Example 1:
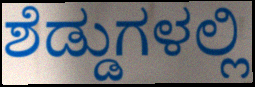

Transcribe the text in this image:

ಶೆಡ್ಡುಗಳಲ್ಲಿ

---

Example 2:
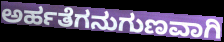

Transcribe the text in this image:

ಅರ್ಹತೆಗನುಗುಣವಾಗಿ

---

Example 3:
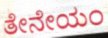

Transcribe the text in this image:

ತೇನೇಯಂ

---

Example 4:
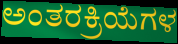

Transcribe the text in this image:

ಅಂತರಕ್ರಿಯೆಗಳ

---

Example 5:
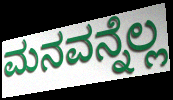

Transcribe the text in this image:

ಮನವನ್ನೆಲ್ಲ